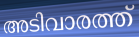
അടിവാരത്ത്